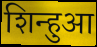
शिन्हुआ